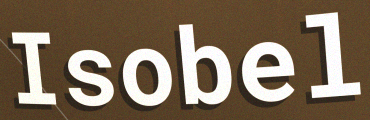
Isobel